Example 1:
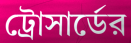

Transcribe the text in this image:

ট্রোসার্ডের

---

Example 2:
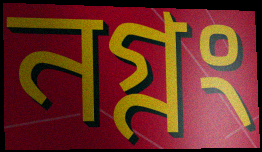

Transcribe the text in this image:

নগ্নং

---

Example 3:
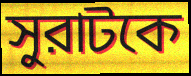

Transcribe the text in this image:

সুরাটকে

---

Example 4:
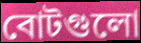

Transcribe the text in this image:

বোটগুলো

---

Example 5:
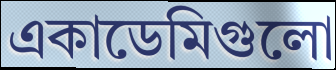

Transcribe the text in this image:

একাডেমিগুলো